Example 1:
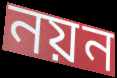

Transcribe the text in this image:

নয়ন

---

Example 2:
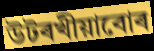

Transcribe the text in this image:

উটৰখীয়াবোৰ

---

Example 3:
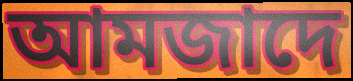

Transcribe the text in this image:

আমজাদে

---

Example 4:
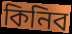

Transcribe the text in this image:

কিনিব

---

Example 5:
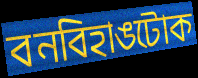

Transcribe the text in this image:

বনবিহাঙটোক